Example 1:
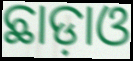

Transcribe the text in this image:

ଛାଡ଼ାଓ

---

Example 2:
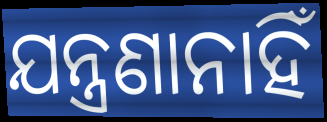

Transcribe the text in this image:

ଯନ୍ତ୍ରଣାନାହିଁ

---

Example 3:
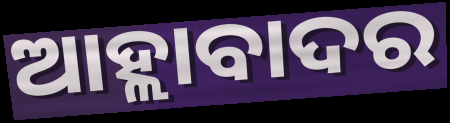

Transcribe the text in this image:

ଆହ୍ଲାବାଦର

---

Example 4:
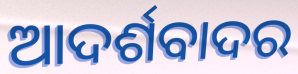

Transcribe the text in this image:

ଆଦର୍ଶବାଦର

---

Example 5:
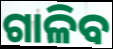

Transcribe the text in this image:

ଗାଳିବ